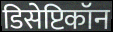
डिसेप्टिकॉन